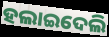
ହଲାଇଦେଲି